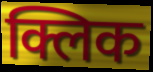
क्लिक